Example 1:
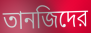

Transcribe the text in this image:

তানজিদের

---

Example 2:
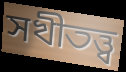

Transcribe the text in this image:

সখীতত্ত্ব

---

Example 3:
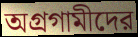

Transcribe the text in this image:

অগ্রগামীদের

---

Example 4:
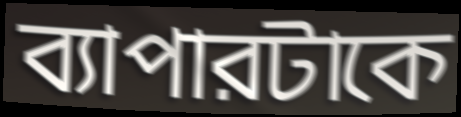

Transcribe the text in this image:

ব্যাপারটাকে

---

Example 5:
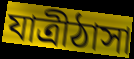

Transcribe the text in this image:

যাত্রীঠাসা